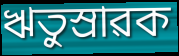
ঋতুস্ৰাৱক